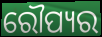
ରୌପ୍ୟର